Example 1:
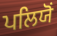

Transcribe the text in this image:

ਪਲਿਯੋਂ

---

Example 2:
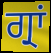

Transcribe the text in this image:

ਗ੍ਰਾਂ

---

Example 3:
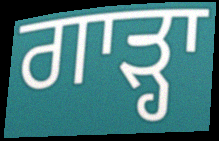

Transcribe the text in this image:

ਗਾੜ੍ਹਾ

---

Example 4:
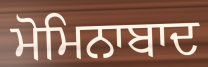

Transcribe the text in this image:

ਮੋਮਿਨਾਬਾਦ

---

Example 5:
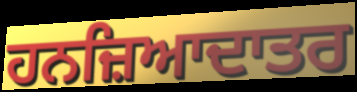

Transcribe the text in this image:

ਹਨਜ਼ਿਆਦਾਤਰ